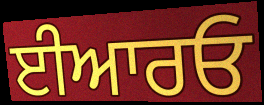
ਈਆਰਓ